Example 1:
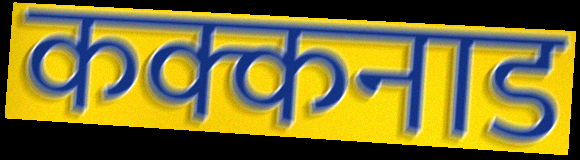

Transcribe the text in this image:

कक्कनाड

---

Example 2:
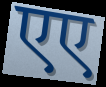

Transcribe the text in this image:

एए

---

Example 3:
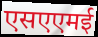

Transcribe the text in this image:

एसएएमई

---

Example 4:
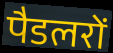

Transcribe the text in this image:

पैडलरों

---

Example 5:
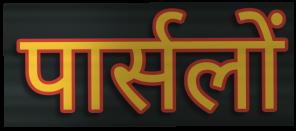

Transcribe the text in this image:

पार्सलों